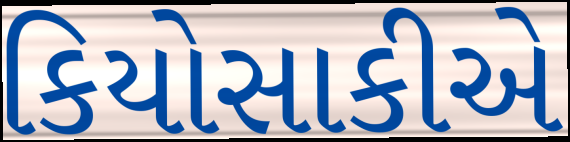
કિયોસાકીએ